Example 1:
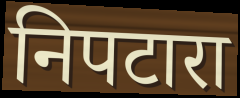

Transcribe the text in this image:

निपटारा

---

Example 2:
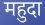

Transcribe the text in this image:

महुदा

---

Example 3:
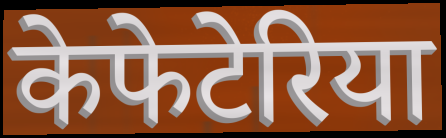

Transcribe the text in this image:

केफेटेरिया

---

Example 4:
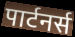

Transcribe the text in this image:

पार्टनर्स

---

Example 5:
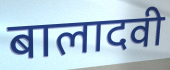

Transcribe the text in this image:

बालादवी